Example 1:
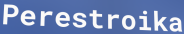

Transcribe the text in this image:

Perestroika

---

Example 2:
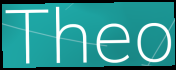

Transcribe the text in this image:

Theo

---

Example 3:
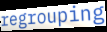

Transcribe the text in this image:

regrouping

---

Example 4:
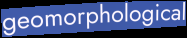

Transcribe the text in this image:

geomorphological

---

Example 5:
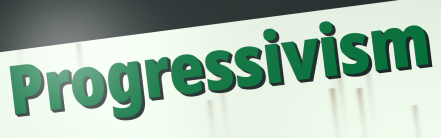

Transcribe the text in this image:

Progressivism